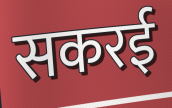
सकरई